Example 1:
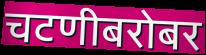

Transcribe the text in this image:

चटणीबरोबर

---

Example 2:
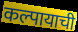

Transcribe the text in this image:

कल्पायाची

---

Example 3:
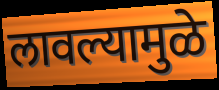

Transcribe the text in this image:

लावल्यामुळे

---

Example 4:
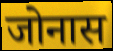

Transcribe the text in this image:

जोनास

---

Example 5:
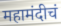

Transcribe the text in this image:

महामंदीचं